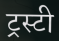
ट्रस्टी